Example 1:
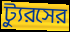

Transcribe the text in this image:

ট্যুরসের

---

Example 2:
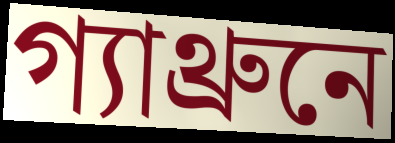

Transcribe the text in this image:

গ্যাথ্রুনে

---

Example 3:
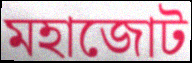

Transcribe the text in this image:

মহাজোট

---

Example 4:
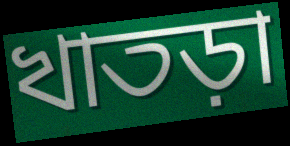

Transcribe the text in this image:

খাতড়া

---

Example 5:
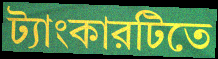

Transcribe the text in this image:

ট্যাংকারটিতে